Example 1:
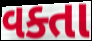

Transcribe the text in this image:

વક્તા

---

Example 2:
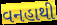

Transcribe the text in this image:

વનહાથી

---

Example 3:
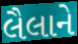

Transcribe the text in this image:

લૈલાને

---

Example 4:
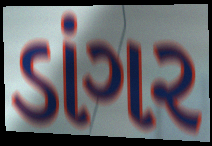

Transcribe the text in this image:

ડાંગર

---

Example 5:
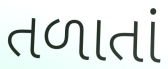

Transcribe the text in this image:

તળાતાં